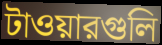
টাওয়ারগুলি